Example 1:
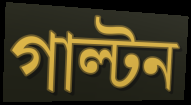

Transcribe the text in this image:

গাল্টন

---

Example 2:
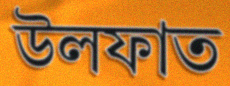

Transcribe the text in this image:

উলফাত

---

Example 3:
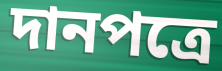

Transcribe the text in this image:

দানপত্রে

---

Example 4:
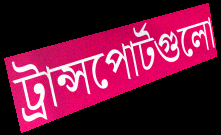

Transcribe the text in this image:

ট্রান্সপোর্টগুলো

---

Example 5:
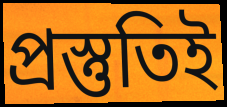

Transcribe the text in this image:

প্রস্তুতিই